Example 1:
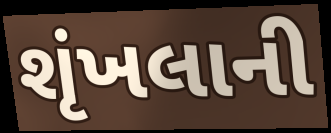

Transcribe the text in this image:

શૃંખલાની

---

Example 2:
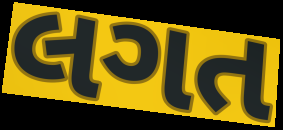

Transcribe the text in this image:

લગત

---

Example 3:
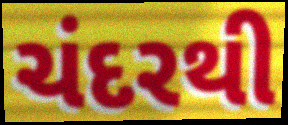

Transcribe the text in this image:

ચંદરથી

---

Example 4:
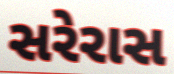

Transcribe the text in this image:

સરેરાસ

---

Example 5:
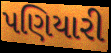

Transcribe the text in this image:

પણિયારી